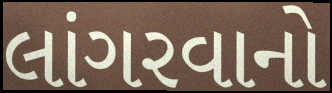
લાંગરવાનો